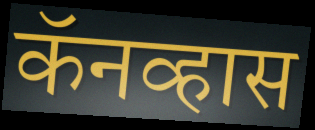
कॅनव्हास